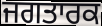
ਜਗਤਾਰਕ